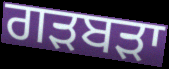
ਗੜਬੜਾ